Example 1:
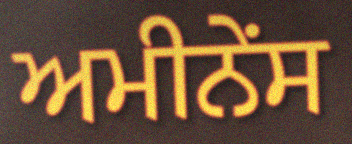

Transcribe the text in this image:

ਅਮੀਨੇਂਸ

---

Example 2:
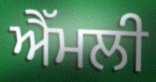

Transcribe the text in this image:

ਐੱਮਲੀ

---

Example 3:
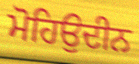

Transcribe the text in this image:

ਮੋਹਿਉਦੀਨ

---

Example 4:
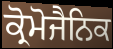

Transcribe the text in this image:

ਕ੍ਰੋਮੋਜੈਨਿਕ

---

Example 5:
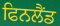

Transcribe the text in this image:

ਫਿਨਲੈਂਡ